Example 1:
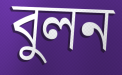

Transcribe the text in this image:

বুলন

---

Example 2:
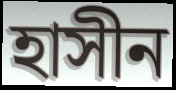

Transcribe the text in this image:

হাসীন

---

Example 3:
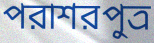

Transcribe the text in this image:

পরাশরপুত্র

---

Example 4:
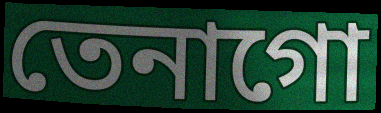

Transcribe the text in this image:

তেনাগো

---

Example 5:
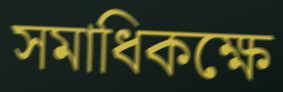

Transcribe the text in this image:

সমাধিকক্ষে